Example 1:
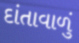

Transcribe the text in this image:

દાંતાવાળું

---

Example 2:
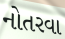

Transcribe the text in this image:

નોતરવા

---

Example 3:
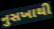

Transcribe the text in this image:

નુસખાથી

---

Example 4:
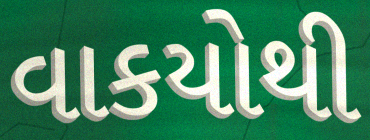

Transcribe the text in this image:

વાકયોથી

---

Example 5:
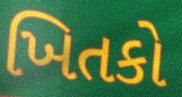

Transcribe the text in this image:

ખિતકો